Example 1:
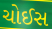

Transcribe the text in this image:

ચોઈસ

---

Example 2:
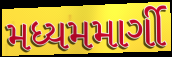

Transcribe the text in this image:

મધ્યમમાર્ગી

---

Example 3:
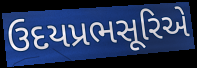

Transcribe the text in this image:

ઉદયપ્રભસૂરિએ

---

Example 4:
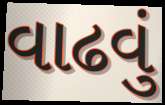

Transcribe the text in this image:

વાઢવું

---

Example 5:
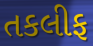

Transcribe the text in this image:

તકલીફ